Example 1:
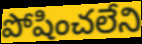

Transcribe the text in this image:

పోషించలేని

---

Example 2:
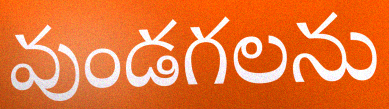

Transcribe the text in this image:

వుండగలను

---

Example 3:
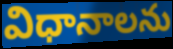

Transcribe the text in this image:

విధానాలను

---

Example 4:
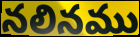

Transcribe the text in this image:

నలినము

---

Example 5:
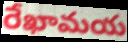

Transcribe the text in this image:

రేఖామయ